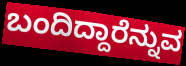
ಬಂದಿದ್ದಾರೆನ್ನುವ